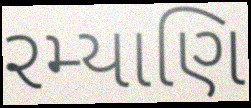
રમ્યાણિ